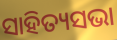
ସାହିତ୍ୟସଭା